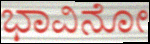
ಭಾವಿನೋ